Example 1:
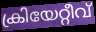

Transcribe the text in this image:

ക്രിയേറ്റീവ്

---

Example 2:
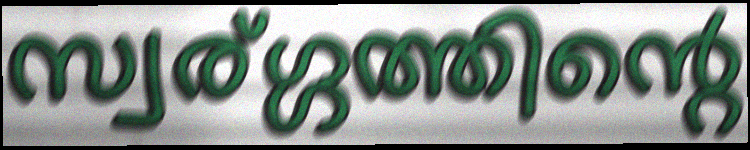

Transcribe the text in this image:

സ്വര്ഗ്ഗത്തിന്റെ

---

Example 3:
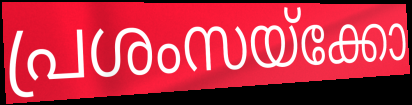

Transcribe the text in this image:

പ്രശംസയ്ക്കോ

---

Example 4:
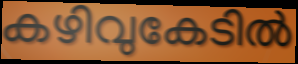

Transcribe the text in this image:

കഴിവുകേടിൽ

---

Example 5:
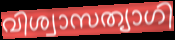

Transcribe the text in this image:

വിശ്വാസത്യാഗി